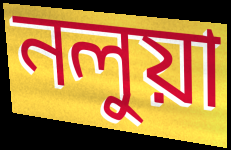
নলুয়া